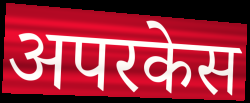
अपरकेस